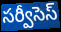
సర్వీసెస్